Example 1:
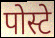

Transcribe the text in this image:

पोस्टे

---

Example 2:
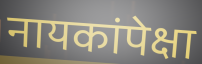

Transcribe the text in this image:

नायकांपेक्षा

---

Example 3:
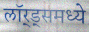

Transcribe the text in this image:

लॉर्ड्समध्ये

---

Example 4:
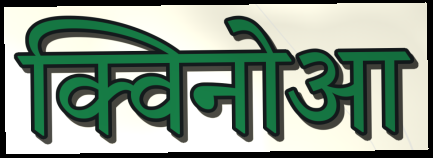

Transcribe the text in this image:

क्विनोआ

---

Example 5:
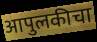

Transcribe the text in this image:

आपुलकीचा